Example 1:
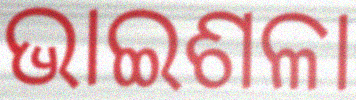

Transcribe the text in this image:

ଭାଇଶଳା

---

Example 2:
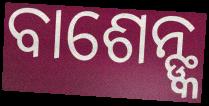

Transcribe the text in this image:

ବାଶେନ୍ଙ୍କ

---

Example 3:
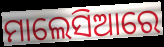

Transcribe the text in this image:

ମାଲେସିଆରେ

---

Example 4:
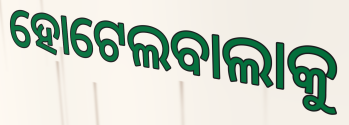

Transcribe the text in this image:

ହୋଟେଲବାଲାକୁ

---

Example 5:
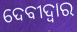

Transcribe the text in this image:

ଦେବୀଦ୍ବାର